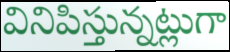
వినిపిస్తున్నట్లుగా